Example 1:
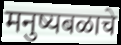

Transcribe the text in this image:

मनुष्यबळाचे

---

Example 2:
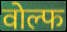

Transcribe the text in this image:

वोल्फ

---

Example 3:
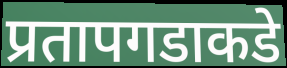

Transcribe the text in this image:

प्रतापगडाकडे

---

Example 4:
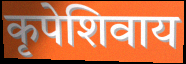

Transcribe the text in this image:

कृपेशिवाय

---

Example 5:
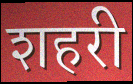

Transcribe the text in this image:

शहरी